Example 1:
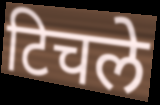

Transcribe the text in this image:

टिचले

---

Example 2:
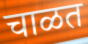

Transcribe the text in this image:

चाळत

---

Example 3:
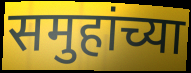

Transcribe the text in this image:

समुहांच्या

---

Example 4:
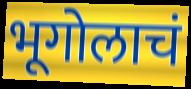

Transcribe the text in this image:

भूगोलाचं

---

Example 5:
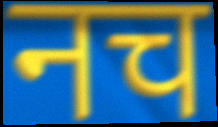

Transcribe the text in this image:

नच